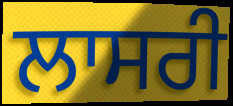
ਲਾਸਰੀ